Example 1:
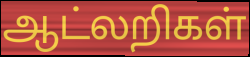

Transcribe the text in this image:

ஆட்லறிகள்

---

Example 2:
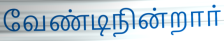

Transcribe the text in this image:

வேண்டிநின்றார்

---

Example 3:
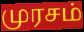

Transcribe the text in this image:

முரசம்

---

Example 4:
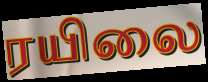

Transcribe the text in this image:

ரயிலை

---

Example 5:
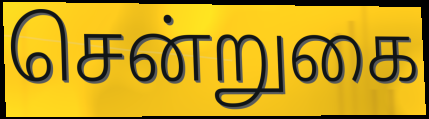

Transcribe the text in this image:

சென்றுகை